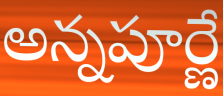
అన్నపూర్ణే